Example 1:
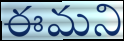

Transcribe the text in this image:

ఈమని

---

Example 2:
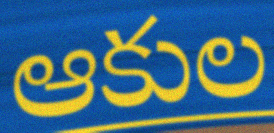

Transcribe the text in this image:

ఆకుల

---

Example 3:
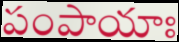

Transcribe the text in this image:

పంపాయాః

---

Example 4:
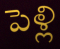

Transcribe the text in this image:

పెళ్లి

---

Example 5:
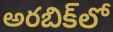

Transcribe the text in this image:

అరబిక్‌లో